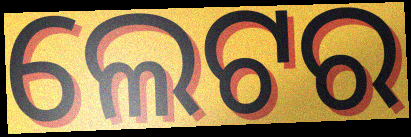
ଲେଟର